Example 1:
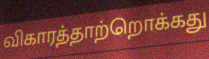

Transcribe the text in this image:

விகாரத்தாற்றொக்கது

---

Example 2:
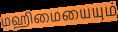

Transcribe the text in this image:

மஹிமையையும்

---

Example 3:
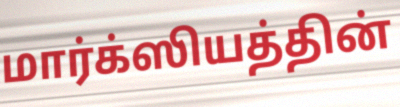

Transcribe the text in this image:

மார்க்ஸியத்தின்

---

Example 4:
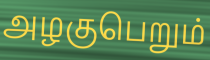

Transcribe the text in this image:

அழகுபெறும்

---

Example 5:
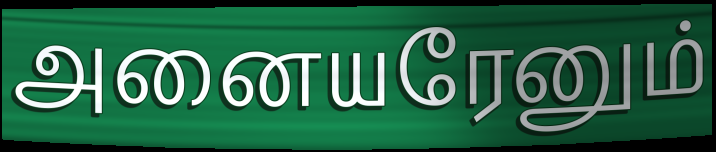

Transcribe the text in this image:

அனையரேனும்